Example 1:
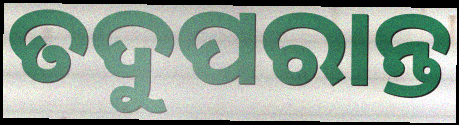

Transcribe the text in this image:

ତଦୁପରାନ୍ତ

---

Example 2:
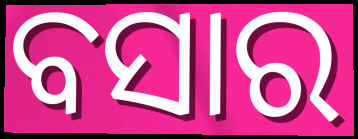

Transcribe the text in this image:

ବସାର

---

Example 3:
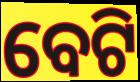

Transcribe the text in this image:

ବେଟି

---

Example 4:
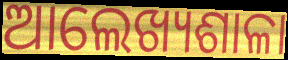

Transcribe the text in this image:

ଆଲେଖ୍ୟଶାଳା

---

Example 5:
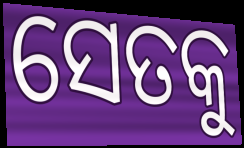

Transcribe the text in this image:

ସେତକୁ